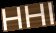
HHI